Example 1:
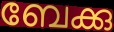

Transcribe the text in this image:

ബേക്കു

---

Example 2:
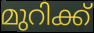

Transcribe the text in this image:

മുറിക്ക്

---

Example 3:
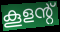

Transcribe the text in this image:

കൂളന്റ്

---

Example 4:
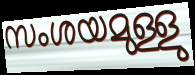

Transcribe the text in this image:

സംശയമുള്ളു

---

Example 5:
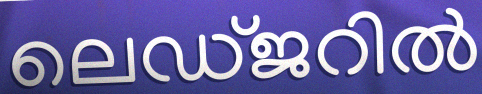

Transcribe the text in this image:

ലെഡ്ജറിൽ